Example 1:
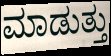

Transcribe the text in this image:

ಮಾಡುತ್ತು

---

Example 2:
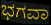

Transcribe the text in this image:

ಭಗವಾ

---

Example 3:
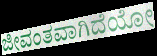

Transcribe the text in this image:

ಜೀವಂತವಾಗಿದೆಯೋ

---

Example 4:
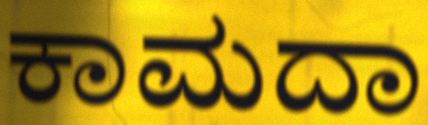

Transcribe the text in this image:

ಕಾಮದಾ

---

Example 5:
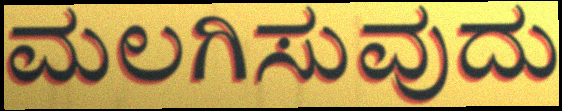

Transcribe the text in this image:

ಮಲಗಿಸುವುದು